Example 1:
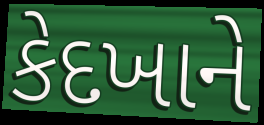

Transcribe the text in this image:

કેદખાને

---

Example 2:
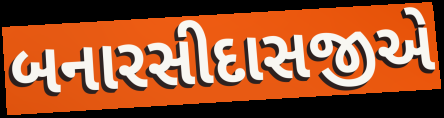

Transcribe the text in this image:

બનારસીદાસજીએ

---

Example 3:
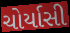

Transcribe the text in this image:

ચોર્યાસી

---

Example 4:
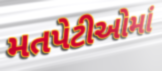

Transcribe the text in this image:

મતપેટીઓમાં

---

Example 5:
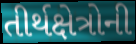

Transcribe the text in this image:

તીર્થક્ષેત્રોની